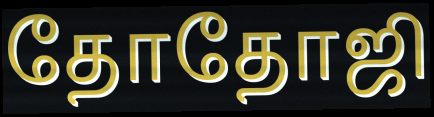
தோதோஜி